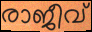
രാജീവ്